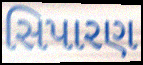
સિપારણ